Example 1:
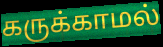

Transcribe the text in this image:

கருக்காமல்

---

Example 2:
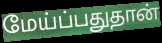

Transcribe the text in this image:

மேய்ப்பதுதான்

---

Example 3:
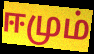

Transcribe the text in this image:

ஈமும்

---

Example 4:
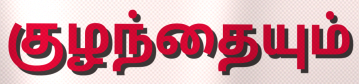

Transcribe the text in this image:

குழந்தையும்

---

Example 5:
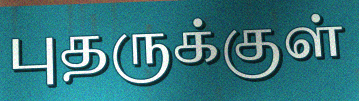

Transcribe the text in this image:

புதருக்குள்